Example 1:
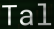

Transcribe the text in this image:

Tal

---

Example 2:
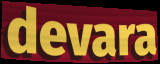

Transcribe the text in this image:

devara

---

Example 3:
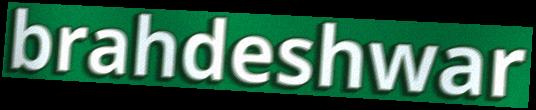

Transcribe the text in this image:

brahdeshwar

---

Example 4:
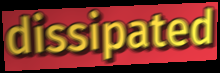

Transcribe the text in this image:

dissipated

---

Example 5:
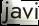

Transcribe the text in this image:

javi